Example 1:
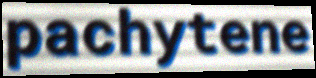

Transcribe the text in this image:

pachytene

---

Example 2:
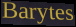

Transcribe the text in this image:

Barytes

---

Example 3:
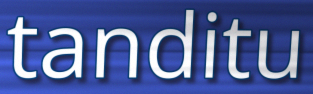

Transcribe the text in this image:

tanditu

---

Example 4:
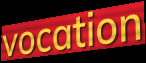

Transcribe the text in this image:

vocation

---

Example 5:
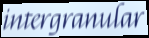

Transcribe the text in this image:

intergranular